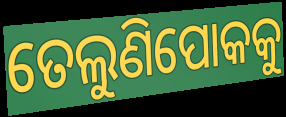
ତେଲୁଣିପୋକକୁ